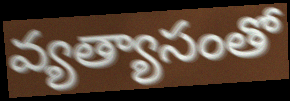
వ్యత్యాసంతో